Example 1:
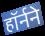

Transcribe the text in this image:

हॉर्नने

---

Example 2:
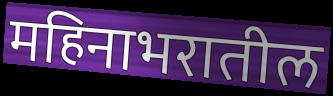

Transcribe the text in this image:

महिनाभरातील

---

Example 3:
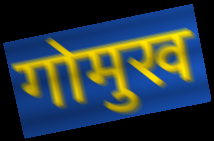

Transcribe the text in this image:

गोमुख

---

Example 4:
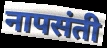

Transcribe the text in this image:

नापसंती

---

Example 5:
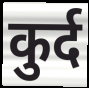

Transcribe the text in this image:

कुर्द